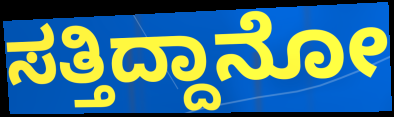
ಸತ್ತಿದ್ದಾನೋ